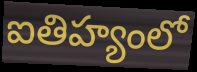
ఐతిహ్యంలో